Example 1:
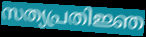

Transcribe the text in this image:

സത്യപ്രതിജ്ഞ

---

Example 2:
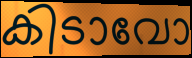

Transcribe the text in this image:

കിടാവോ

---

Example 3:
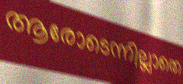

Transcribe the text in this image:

ആരോടെന്നില്ലാതെ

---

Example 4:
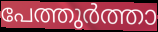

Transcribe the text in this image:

പേത്തുർത്താ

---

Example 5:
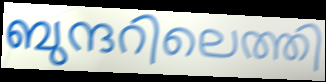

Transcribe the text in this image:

ബുന്ദറിലെത്തി